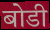
बोडी